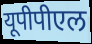
यूपीपीएल